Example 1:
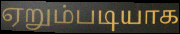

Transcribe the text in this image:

ஏறும்படியாக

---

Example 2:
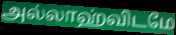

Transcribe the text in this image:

அல்லாஹ்விடமே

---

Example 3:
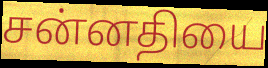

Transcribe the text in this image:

சன்னதியை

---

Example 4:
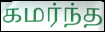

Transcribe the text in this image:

கமர்ந்த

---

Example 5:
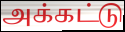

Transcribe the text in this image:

அக்கட்டு